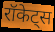
रॉकेट्स